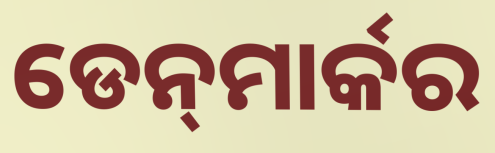
ଡେନ୍‍ମାର୍କର